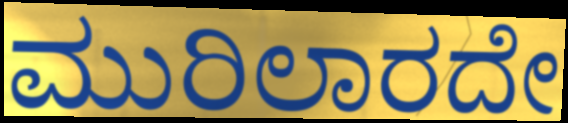
ಮುರಿಲಾರದೇ